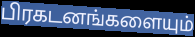
பிரகடனங்களையும்